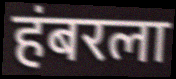
हंबरला